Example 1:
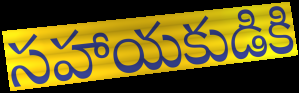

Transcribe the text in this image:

సహాయకుడికి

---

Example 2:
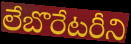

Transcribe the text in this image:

లేబొరేటరీని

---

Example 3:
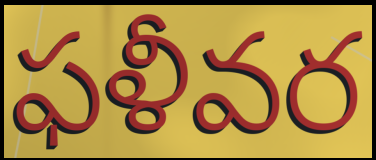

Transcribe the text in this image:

ఫళీవర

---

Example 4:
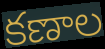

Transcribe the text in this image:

కణాల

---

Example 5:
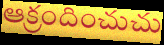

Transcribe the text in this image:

ఆక్రందించుచు